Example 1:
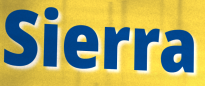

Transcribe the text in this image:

Sierra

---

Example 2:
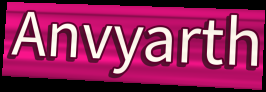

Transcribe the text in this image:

Anvyarth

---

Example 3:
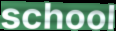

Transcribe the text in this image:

school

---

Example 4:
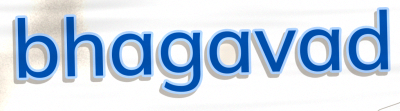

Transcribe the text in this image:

bhagavad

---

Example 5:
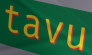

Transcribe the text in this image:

tavu